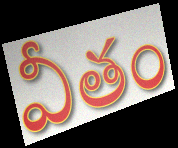
వీతం